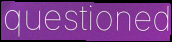
questioned